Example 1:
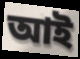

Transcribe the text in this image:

আই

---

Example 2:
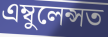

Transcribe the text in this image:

এম্বুলেন্সত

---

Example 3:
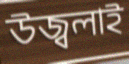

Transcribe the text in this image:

উজ্বলাই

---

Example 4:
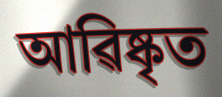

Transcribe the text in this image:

আৱিষ্কৃত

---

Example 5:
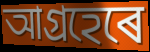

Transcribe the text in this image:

আগ্ৰহেৰে